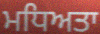
ਮਧਿਅਤਾ